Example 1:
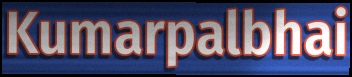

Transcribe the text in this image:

Kumarpalbhai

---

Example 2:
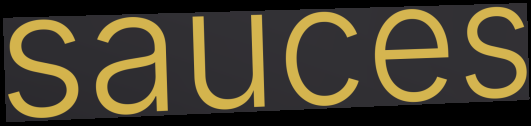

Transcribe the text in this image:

sauces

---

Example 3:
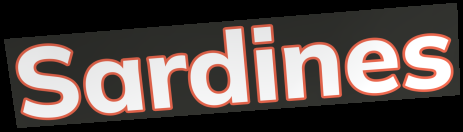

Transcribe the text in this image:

Sardines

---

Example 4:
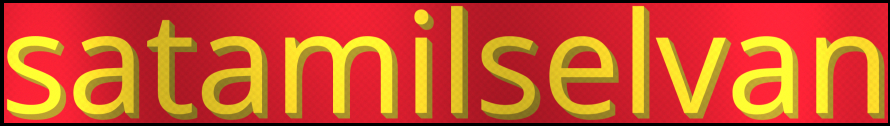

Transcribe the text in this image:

satamilselvan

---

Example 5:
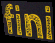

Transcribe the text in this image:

fini